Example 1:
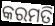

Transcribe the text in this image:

କରମତି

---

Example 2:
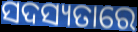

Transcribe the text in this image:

ସଦସ୍ୟତାରେ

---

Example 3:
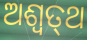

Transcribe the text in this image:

ଅଶ୍ଵତ୍‍ଥ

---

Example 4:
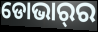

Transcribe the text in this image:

ଡୋଭାର୍‌ର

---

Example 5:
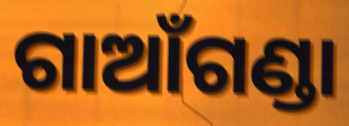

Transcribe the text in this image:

ଗାଆଁଗଣ୍ଡା